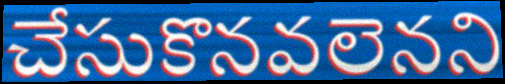
చేసుకొనవలెనని